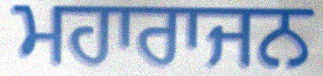
ਮਹਾਰਾਜਨ